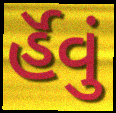
ર્હૅવું